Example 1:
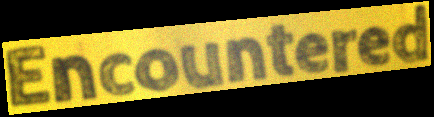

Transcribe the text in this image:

Encountered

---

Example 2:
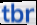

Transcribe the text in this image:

tbr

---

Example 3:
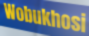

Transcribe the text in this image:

Wobukhosi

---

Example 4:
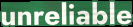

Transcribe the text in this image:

unreliable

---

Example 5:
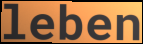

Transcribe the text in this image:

leben